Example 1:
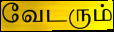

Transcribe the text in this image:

வேடரும்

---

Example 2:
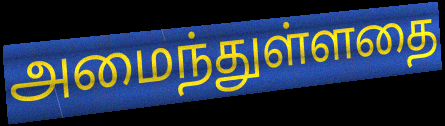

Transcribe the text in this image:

அமைந்துள்ளதை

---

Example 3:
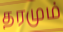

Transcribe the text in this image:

தரமும்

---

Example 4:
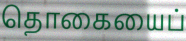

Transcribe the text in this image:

தொகையைப்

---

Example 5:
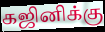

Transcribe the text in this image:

கஜினிக்கு